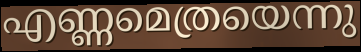
എണ്ണമെത്രയെന്നു